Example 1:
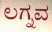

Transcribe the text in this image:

ಲಗ್ನವ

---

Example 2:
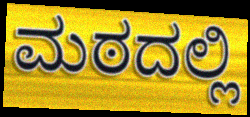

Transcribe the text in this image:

ಮಠದಲ್ಲಿ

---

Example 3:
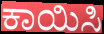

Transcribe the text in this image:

ಕಾಯಿಸಿ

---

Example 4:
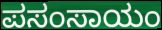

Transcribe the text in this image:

ಪಸಂಸಾಯಂ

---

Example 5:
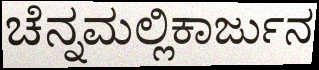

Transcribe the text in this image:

ಚೆನ್ನಮಲ್ಲಿಕಾರ್ಜುನ